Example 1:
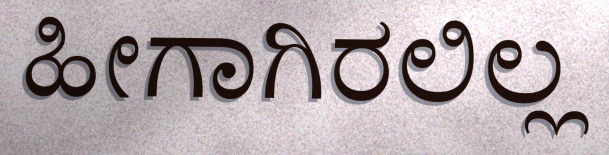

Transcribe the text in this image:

ಹೀಗಾಗಿರಲಿಲ್ಲ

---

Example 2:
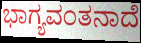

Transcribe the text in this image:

ಭಾಗ್ಯವಂತನಾದೆ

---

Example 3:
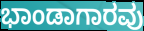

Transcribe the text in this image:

ಭಾಂಡಾಗಾರವು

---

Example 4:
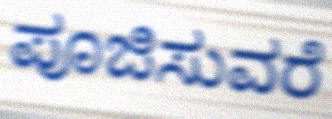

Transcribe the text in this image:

ಪೂಜಿಸುವರೆ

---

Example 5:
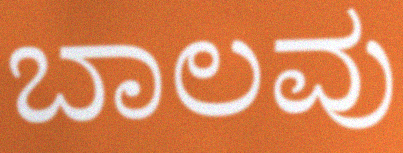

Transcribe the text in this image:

ಬಾಲವು